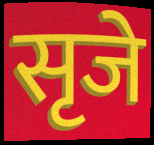
सृजे